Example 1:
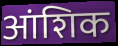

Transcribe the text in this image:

आंशिक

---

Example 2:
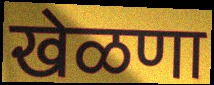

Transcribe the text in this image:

खेळणा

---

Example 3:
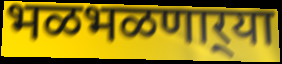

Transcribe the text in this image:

भळभळणार्या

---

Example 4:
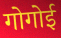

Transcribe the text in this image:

गोगोई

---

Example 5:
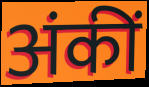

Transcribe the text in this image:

अंकीं